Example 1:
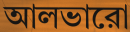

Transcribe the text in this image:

আলভারো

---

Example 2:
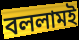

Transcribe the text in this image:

বললামই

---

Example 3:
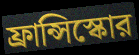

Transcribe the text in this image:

ফ্রান্সিস্কোর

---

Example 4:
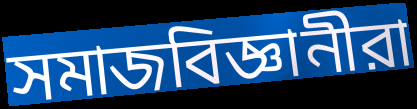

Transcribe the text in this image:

সমাজবিজ্ঞানীরা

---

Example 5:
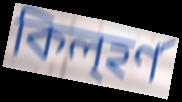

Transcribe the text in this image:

কিল্‌হর্ণ